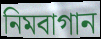
নিমবাগান